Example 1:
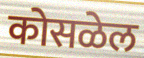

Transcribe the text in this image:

कोसळेल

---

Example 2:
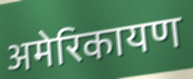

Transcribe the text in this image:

अमेरिकायण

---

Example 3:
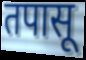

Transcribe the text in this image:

तपासू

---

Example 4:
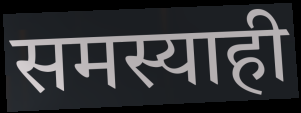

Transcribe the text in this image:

समस्याही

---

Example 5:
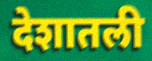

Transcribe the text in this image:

देशातली